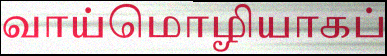
வாய்மொழியாகப்